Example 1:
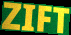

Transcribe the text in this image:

ZIFT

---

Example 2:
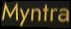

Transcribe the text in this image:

Myntra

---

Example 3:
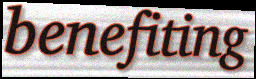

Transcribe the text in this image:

benefiting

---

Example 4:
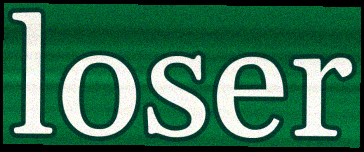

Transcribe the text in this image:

loser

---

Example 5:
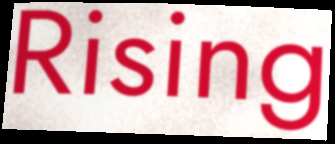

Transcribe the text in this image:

Rising